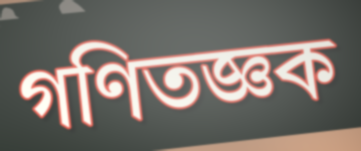
গণিতজ্ঞক